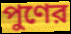
পুণের